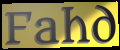
Fahd